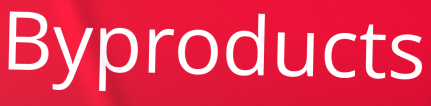
Byproducts